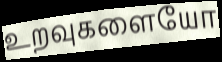
உறவுகளையோ